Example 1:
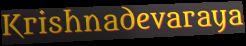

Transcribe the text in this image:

Krishnadevaraya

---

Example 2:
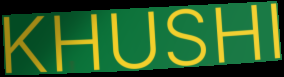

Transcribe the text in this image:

KHUSHI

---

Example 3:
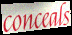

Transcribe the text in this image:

conceals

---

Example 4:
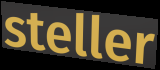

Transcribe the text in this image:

steller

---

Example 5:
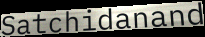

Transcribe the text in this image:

Satchidanand